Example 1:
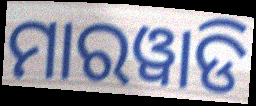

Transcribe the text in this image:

ମାରୱାଡି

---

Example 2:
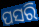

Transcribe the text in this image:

ପସରି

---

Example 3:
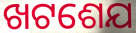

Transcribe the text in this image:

ଖଟଶେଯ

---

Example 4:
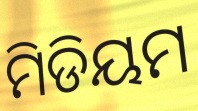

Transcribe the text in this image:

ମିଡିୟମ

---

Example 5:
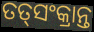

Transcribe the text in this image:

ତତ୍‌ସଂକ୍ରାନ୍ତ